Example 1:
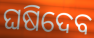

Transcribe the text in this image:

ଘଷିଦେବ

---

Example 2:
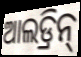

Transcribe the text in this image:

ଆଲଡ୍ରିନ୍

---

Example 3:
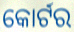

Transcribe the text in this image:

କୋର୍ଟର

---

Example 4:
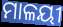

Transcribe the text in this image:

ମାଳୟୀ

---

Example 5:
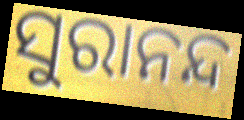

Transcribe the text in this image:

ସୁରାନନ୍ଦ